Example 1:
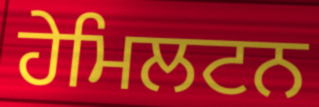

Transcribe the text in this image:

ਹੇਮਿਲਟਨ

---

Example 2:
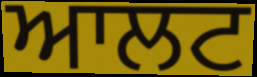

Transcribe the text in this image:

ਆਲਟ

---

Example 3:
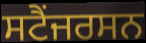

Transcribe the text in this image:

ਸਟੈਂਜਰਸਨ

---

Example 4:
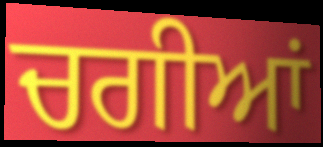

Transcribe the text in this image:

ਚਗੀਆਂ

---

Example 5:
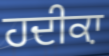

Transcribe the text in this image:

ਹਦੀਕ਼ਾ